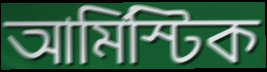
আর্মিস্টিক